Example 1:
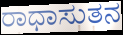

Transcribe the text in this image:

ರಾಧಾಸುತನ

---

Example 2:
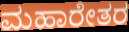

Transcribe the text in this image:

ಮಹಾರೇತರ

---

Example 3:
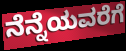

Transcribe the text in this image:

ನೆನ್ನೆಯವರೆಗೆ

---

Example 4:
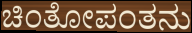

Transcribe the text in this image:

ಚಿಂತೋಪಂತನು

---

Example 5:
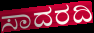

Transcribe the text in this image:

ಸಾದರದಿ